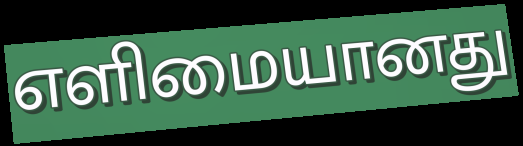
எளிமையானது